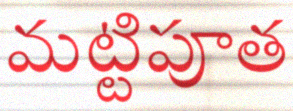
మట్టిపూత